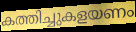
കത്തിച്ചുകളയണം